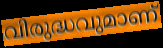
വിരുദ്ധവുമാണ്